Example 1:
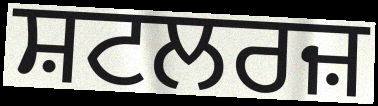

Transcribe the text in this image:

ਸ਼ਟਲਰਜ਼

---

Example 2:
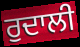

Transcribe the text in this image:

ਰੁਦਾਲੀ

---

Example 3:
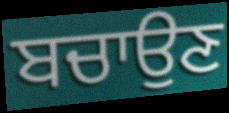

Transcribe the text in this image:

ਬਚਾਉਣ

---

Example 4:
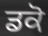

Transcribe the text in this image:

ਡਕੋ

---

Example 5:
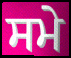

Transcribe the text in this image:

ਸਮੇ